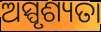
ଅସ୍ପୃଶ୍ୟତା